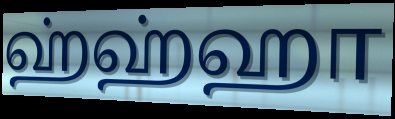
ஹ்ஹ்ஹா